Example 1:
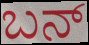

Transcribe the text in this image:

ಬನ್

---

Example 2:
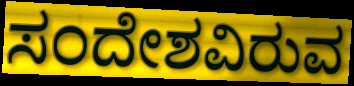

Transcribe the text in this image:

ಸಂದೇಶವಿರುವ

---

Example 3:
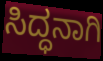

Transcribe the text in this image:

ಸಿದ್ಧನಾಗಿ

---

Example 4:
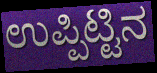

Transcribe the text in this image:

ಉಪ್ಪಿಟ್ಟಿನ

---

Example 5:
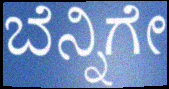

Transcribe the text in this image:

ಬೆನ್ನಿಗೇ